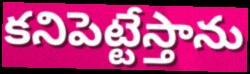
కనిపెట్టేస్తాను